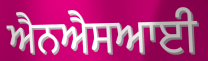
ਐਨਐਸਆਈ